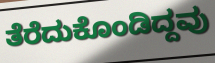
ತೆರೆದುಕೊಂಡಿದ್ದವು